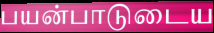
பயன்பாடுடைய